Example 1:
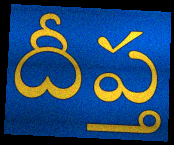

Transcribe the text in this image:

దీప్త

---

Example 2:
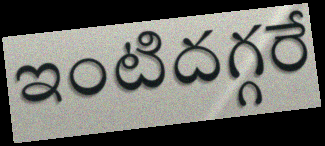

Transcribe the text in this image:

ఇంటిదగ్గరే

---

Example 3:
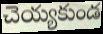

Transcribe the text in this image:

చెయ్యకుండ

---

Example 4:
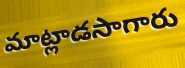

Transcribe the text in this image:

మాట్లాడసాగారు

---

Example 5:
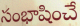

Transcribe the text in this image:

సంభాషించే